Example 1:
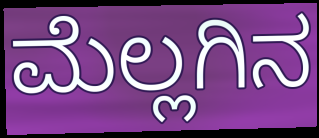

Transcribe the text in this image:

ಮೆಲ್ಲಗಿನ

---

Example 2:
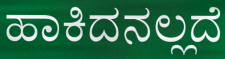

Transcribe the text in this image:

ಹಾಕಿದನಲ್ಲದೆ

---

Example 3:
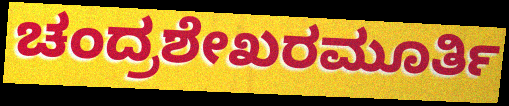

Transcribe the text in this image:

ಚಂದ್ರಶೇಖರಮೂರ್ತಿ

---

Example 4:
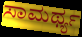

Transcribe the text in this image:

ಸಾಮರ್ಥ್ಯ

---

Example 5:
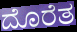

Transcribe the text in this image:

ದೊರೆತ